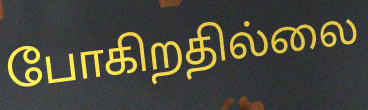
போகிறதில்லை